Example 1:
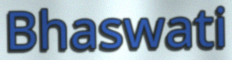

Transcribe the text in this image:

Bhaswati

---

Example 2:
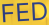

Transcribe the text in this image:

FED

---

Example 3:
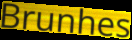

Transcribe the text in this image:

Brunhes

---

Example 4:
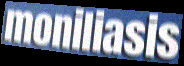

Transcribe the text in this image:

moniliasis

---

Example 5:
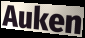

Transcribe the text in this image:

Auken